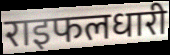
राइफलधारी